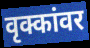
वृक्कांवर